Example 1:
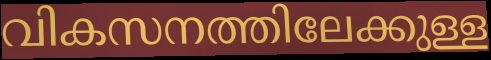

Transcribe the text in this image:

വികസനത്തിലേക്കുള്ള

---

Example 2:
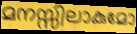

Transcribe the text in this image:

മനസ്സിലാകുമോ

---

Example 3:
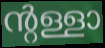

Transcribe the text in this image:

ന്റള്ളാ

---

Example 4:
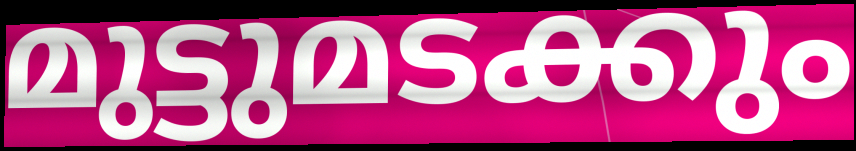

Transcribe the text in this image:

മുട്ടുമടക്കും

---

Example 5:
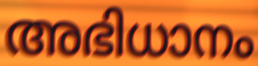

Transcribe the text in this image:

അഭിധാനം